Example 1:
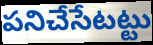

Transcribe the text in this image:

పనిచేసేటట్టు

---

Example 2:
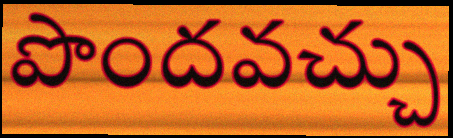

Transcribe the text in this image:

పొందవచ్చు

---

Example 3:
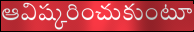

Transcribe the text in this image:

ఆవిష్కరించుకుంటూ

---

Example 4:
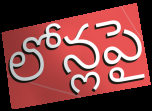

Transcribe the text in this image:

లోన్లపై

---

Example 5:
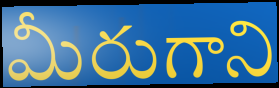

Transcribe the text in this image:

మీరుగాని